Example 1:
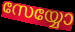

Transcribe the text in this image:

സേയ്യോ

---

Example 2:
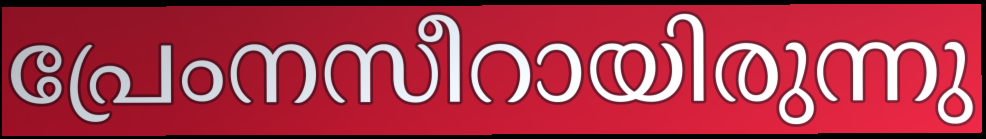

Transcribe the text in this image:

പ്രേംനസീറായിരുന്നു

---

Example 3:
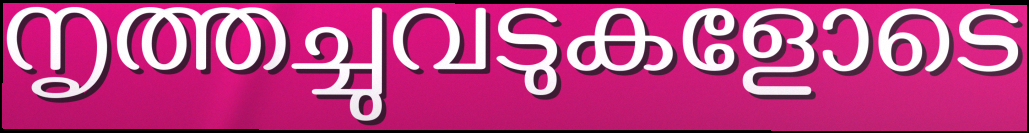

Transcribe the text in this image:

നൃത്തച്ചുവടുകളോടെ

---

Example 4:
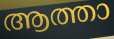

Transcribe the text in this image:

ആത്താ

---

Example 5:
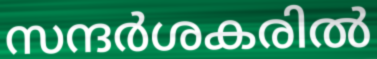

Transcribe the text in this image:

സന്ദർശകരിൽ